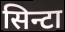
सिन्टा